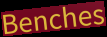
Benches